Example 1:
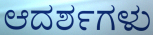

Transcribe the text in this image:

ಆದರ್ಶಗಳು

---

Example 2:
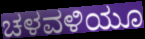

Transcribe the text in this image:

ಚಳವಳಿಯೂ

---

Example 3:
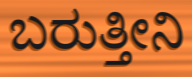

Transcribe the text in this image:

ಬರುತ್ತೀನಿ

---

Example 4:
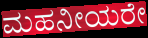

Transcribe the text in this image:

ಮಹನೀಯರೇ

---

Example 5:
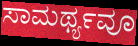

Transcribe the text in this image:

ಸಾಮರ್ಥ್ಯವೂ